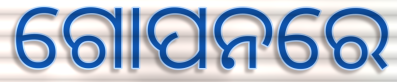
ଗୋପନରେ